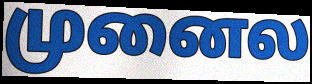
முனைல